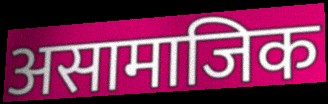
असामाजिक